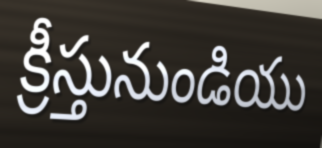
క్రీస్తునుండియు